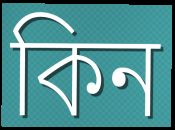
কিন